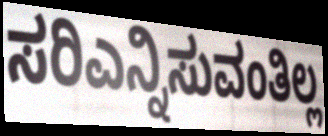
ಸರಿಎನ್ನಿಸುವಂತಿಲ್ಲ